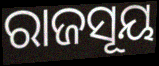
ରାଜସୂୟ